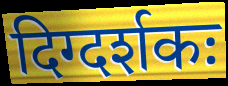
दिग्दर्शकः